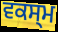
ਵਕਸ੍ਮ